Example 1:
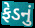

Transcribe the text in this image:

ફેડનું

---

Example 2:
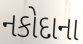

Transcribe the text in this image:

નકોદાના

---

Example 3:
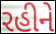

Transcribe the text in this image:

રહીને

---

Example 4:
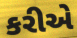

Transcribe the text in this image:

કરીએ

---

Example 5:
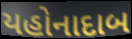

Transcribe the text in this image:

યહોનાદાબ